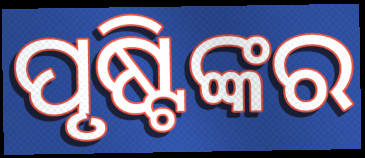
ପୃଷ୍ଟିଙ୍କର